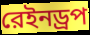
রেইনড্রপ